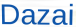
Dazai